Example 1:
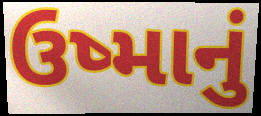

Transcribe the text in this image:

ઉષ્માનું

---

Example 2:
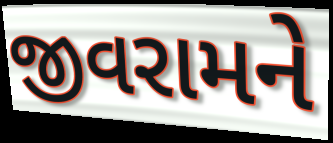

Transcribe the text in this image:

જીવરામને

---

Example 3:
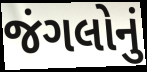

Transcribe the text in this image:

જંગલોનું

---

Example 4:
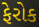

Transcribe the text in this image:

ફેરોક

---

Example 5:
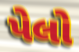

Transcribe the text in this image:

પેલો